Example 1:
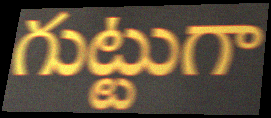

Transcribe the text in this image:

గుట్టుగా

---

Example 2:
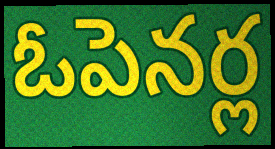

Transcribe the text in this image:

ఓపెనర్ల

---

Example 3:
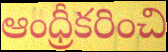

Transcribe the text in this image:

ఆంధ్రీకరించి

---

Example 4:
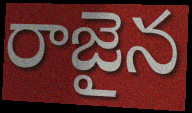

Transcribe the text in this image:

రాజైన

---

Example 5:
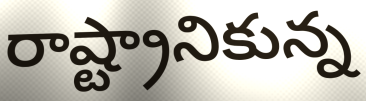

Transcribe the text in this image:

రాష్ట్రానికున్న